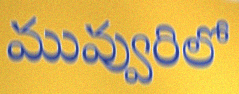
మువ్వురిలో